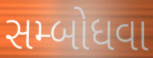
સમ્બોધવા